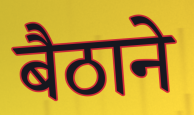
बैठाने